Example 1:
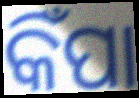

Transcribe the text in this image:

କିଁପା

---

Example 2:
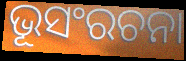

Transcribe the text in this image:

ଭୂସଂରଚନା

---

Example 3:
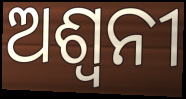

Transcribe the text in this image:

ଅଶ୍ୱନୀ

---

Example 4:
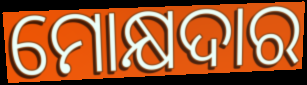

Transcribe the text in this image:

ମୋକ୍ଷଦାର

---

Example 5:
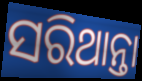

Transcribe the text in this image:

ସରିଥାନ୍ତା